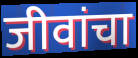
जीवांचा